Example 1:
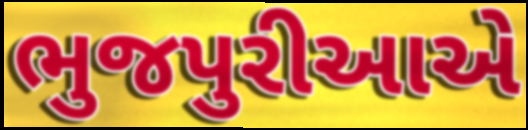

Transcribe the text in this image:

ભુજપુરીઆએ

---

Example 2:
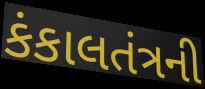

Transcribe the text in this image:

કંકાલતંત્રની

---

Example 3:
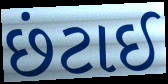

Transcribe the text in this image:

છંટાઈ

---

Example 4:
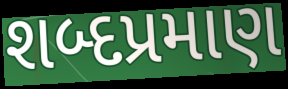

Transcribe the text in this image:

શબ્દપ્રમાણ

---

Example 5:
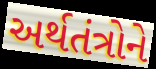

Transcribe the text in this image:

અર્થતંત્રોને